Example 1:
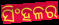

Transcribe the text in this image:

ସିଂହଳର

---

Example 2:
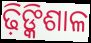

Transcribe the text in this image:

ଢ଼ିଙ୍କିଶାଳ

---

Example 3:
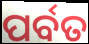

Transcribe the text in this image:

ପର୍ବତ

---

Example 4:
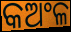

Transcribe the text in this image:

କଅଂଳ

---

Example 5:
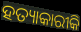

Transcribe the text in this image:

ହତ୍ୟାକାରୀକି